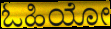
ಓಹಿಯೋ